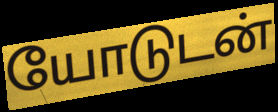
யோடுடன்